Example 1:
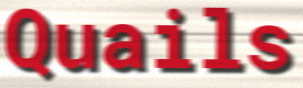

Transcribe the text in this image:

Quails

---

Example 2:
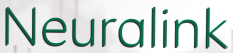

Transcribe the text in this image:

Neuralink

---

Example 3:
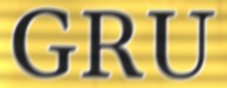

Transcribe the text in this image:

GRU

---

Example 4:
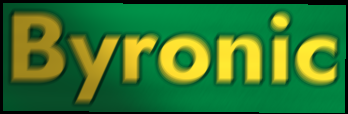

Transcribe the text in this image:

Byronic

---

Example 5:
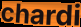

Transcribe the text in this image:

chardi